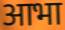
आभा